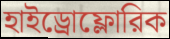
হাইড্রোফ্লোরিক